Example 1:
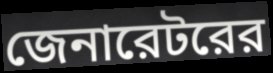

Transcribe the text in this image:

জেনারেটরের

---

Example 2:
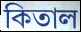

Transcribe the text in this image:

কিতাল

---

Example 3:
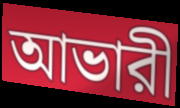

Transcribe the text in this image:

আভারী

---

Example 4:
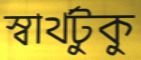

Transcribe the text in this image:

স্বার্থটুকু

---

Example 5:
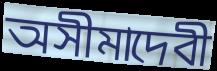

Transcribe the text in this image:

অসীমাদেবী